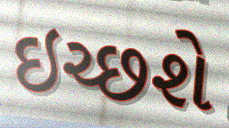
ઇચ્છશે